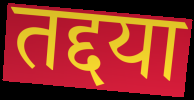
तद्दया